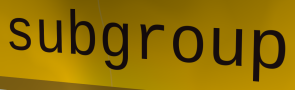
subgroup